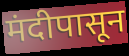
मंदीपासून